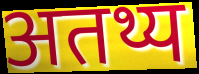
अतथ्य